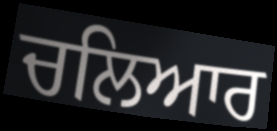
ਚਲਿਆਰ